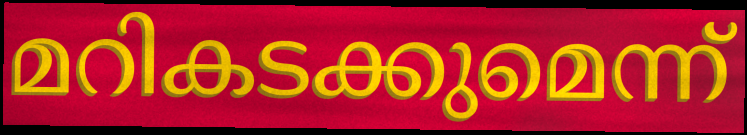
മറികടക്കുമെന്ന്